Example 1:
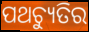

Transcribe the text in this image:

ପଥଚ୍ୟୁତିର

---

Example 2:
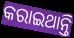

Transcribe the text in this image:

କରାଇଥାନ୍ତି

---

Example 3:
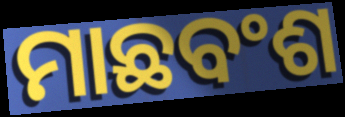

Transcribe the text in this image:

ମାଛବଂଶ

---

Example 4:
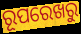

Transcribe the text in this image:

ରୂପରେଖରୁ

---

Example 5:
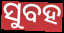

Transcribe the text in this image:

ସୁବହ